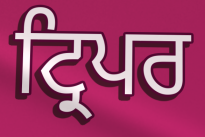
ਟ੍ਰਿਪਰ